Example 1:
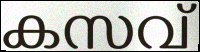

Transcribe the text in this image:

കസവ്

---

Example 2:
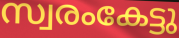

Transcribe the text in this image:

സ്വരംകേട്ടു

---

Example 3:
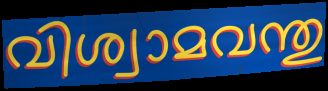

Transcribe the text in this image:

വിശ്വാമവന്തു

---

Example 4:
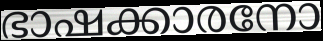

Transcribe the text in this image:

ഭാഷക്കാരനോ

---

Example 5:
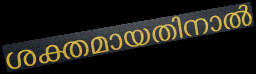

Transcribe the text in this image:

ശക്തമായതിനാൽ